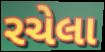
રચેલા